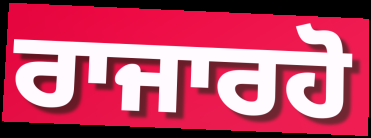
ਰਾਜਾਰਹੋ